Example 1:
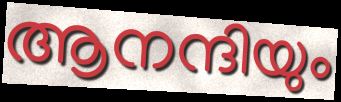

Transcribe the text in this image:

ആനന്ദിയും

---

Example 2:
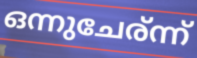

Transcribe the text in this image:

ഒന്നുചേര്ന്ന്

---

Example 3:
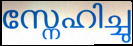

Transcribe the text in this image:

സ്നേഹിച്ചു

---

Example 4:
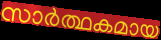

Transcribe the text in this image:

സാർത്ഥകമായ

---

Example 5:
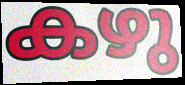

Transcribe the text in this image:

കഴു